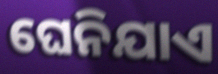
ଘେନିଯାଏ